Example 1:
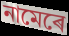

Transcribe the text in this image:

নামেৰে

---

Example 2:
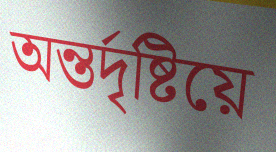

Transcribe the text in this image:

অন্তৰ্দৃষ্টিয়ে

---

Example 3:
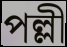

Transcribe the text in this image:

পল্লী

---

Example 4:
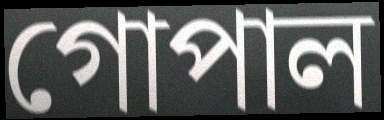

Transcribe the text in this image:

গোপাল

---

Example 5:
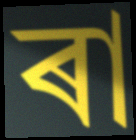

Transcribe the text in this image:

ৰা